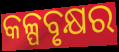
କଳ୍ପବୃକ୍ଷର